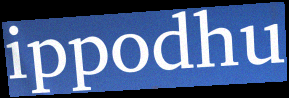
ippodhu